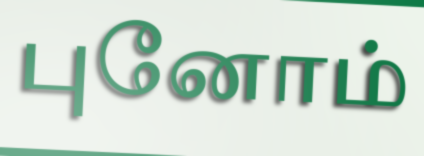
புனோம்